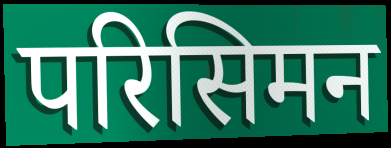
परिसिमन